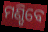
ମଣ୍ଡିବେ